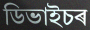
ডিভাইচৰ